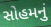
સોહમનું